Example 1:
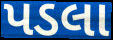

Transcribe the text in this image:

પડલા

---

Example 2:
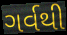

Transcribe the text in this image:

ગર્વથી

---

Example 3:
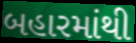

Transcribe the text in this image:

બહારમાંથી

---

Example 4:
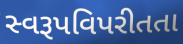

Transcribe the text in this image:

સ્વરૂપવિપરીતતા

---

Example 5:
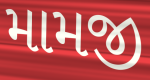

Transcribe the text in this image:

મામજી